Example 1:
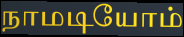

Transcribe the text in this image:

நாமடியோம்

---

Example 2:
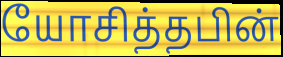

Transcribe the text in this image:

யோசித்தபின்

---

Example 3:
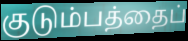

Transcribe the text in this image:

குடும்பத்தைப்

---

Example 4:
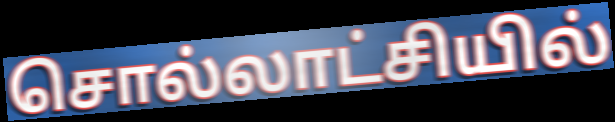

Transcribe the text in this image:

சொல்லாட்சியில்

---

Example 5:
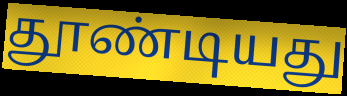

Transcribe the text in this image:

தூண்டியது